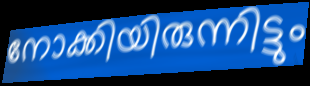
നോക്കിയിരുന്നിട്ടും